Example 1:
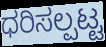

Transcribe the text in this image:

ಧರಿಸಲ್ಪಟ್ಟ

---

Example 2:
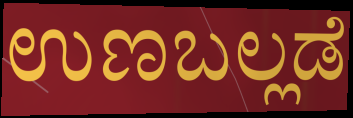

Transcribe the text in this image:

ಉಣಬಲ್ಲಡೆ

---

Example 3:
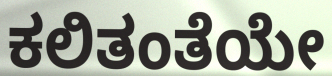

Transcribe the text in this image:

ಕಲಿತಂತೆಯೇ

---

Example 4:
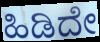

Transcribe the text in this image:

ಹಿಡಿದೇ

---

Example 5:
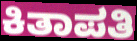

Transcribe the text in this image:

ಕಿತಾಪತಿ